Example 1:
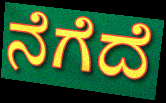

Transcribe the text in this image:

ನೆಗೆದೆ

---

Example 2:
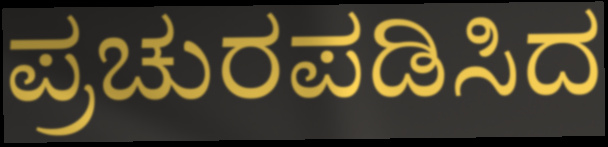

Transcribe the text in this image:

ಪ್ರಚುರಪಡಿಸಿದ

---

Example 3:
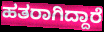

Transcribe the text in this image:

ಹತರಾಗಿದ್ದಾರೆ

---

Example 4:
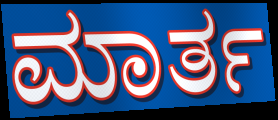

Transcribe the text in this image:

ಮಾರ್ತ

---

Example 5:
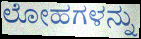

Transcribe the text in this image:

ಲೋಹಗಳನ್ನು